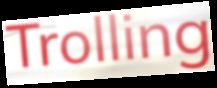
Trolling